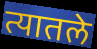
त्यातले